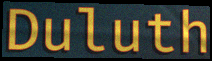
Duluth